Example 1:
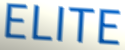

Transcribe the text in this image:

ELITE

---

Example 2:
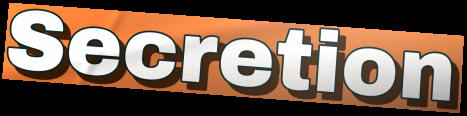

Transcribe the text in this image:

Secretion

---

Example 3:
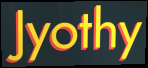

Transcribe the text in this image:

Jyothy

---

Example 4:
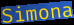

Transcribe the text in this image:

Simona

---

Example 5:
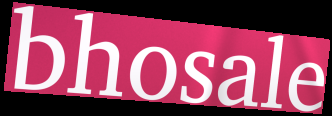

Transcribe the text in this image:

bhosale